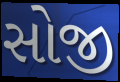
સોજી